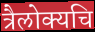
त्रैलोक्यचि